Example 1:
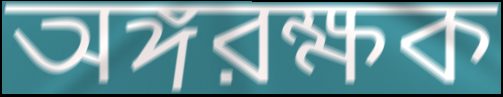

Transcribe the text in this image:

অঙ্গরক্ষক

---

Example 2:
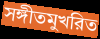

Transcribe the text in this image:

সঙ্গীতমুখরিত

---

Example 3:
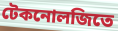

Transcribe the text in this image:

টেকনোলজিতে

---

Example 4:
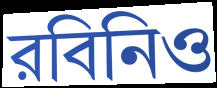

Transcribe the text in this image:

রবিনিও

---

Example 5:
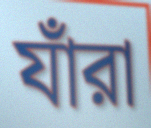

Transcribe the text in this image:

যাঁরা